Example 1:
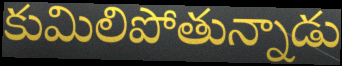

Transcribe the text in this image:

కుమిలిపోతున్నాడు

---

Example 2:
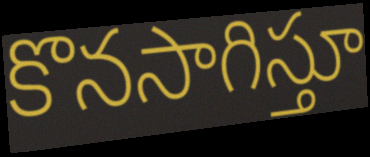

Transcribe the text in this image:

కొనసాగిస్తూ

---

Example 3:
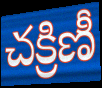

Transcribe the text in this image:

చక్రిణీ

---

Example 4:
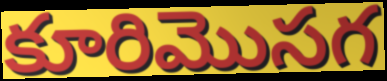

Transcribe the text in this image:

కూరిమొసగ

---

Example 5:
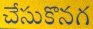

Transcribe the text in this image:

చేసుకొనగ